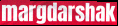
margdarshak